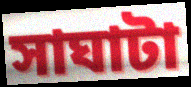
সাঘাটা